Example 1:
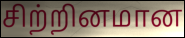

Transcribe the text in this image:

சிற்றினமான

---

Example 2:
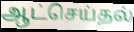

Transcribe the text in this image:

ஆட்செய்தல்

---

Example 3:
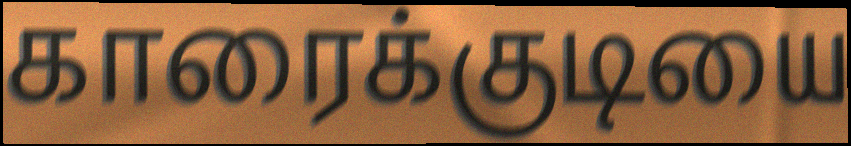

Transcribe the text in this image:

காரைக்குடியை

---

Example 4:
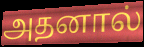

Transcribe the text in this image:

அதனால்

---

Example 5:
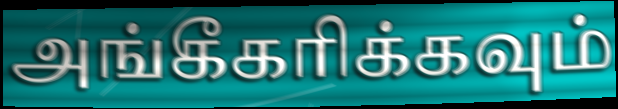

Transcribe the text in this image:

அங்கீகரிக்கவும்